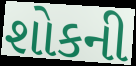
શોકની